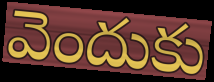
వెందుకు